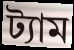
ট্যাম